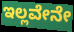
ಇಲ್ಲವೇನೇ